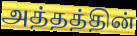
அத்தத்தின்